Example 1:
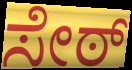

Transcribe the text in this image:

ಸೇಠ್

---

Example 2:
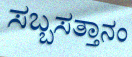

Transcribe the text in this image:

ಸಬ್ಬಸತ್ತಾನಂ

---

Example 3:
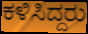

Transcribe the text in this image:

ಕಳಿಸಿದ್ದರು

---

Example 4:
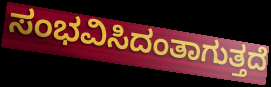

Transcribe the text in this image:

ಸಂಭವಿಸಿದಂತಾಗುತ್ತದೆ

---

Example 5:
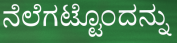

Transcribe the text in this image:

ನೆಲೆಗಟ್ಟೊಂದನ್ನು